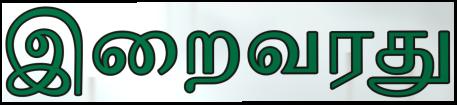
இறைவரது